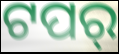
ଟପର୍